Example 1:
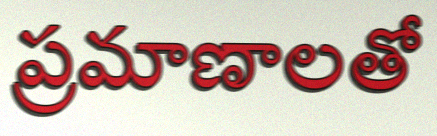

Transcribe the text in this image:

ప్రమాణాలతో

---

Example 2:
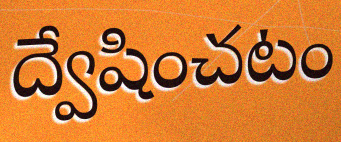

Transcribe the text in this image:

ద్వేషించటం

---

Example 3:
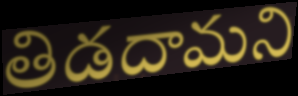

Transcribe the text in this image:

తిడదామని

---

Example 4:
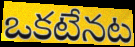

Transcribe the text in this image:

ఒకటేనట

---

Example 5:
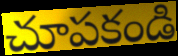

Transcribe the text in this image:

చూపకండి